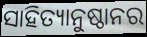
ସାହିତ୍ୟାନୁଷ୍ଠାନର